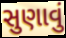
સુણાવું